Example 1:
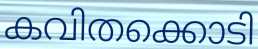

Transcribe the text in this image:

കവിതക്കൊടി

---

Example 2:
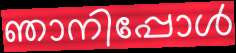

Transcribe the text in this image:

ഞാനിപ്പോൾ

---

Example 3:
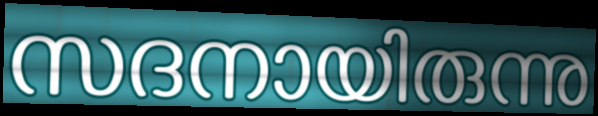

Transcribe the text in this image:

സദനായിരുന്നു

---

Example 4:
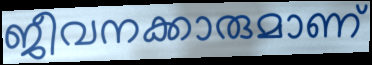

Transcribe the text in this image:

ജീവനക്കാരുമാണ്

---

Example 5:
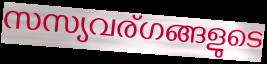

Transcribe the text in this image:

സസ്യവര്ഗങ്ങളുടെ